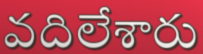
వదిలేశారు